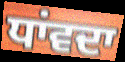
ਧਾਂਵਦਾ